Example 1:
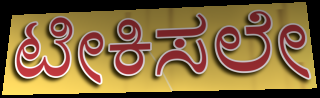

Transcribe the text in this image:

ಟೀಕಿಸಲೇ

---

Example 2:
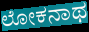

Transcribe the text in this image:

ಲೋಕನಾಥ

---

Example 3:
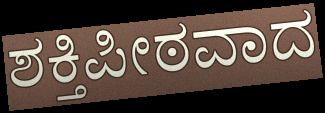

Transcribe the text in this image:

ಶಕ್ತಿಪೀಠವಾದ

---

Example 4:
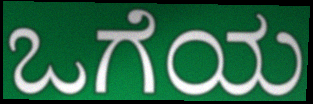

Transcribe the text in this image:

ಒಗೆಯ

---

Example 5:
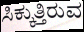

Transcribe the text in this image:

ಸಿಕ್ಕುತ್ತಿರುವ